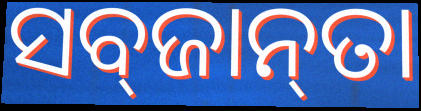
ସବ୍‌ଜାନ୍‌ତା